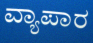
ವ್ಯಾಪಾರ